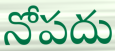
నోపదు